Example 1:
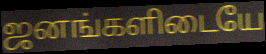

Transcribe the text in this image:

ஜனங்களிடையே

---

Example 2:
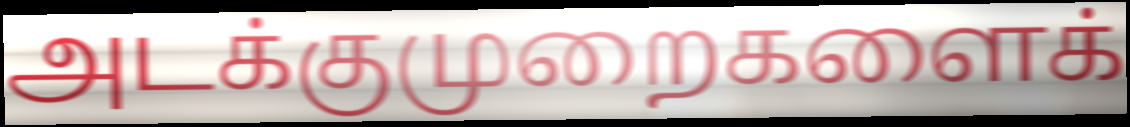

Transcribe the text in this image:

அடக்குமுறைகளைக்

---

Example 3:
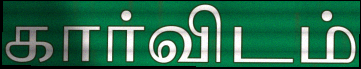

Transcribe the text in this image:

கார்விடம்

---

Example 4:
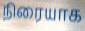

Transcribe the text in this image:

நிரையாக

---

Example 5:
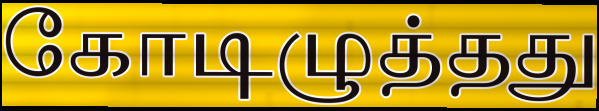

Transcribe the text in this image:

கோடிழுத்தது